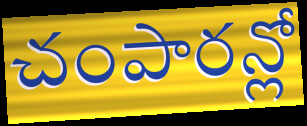
చంపారన్లో